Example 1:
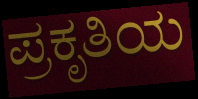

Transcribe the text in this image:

ಪ್ರಕೃತಿಯ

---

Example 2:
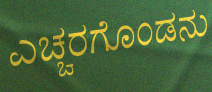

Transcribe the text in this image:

ಎಚ್ಚರಗೊಂಡನು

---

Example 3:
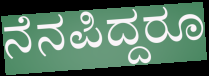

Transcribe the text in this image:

ನೆನಪಿದ್ದರೂ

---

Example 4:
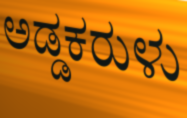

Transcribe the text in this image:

ಅಡ್ಡಕರುಳು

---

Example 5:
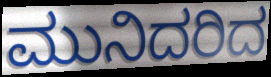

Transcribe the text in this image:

ಮುನಿದರಿದ